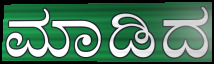
ಮಾಡಿದ